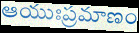
ఆయుఃప్రమాణం